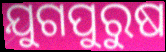
ଯୁଗପୁରୁଷ